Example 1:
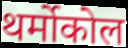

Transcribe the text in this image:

थर्मोकोल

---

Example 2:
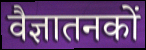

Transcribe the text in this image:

वैज्ञातनकों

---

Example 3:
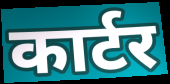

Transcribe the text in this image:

कार्टर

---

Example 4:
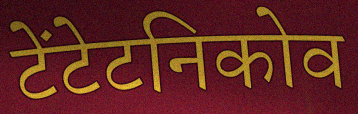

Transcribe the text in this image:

टेंटेटनिकोव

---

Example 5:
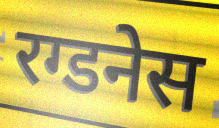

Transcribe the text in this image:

रग्डनेस